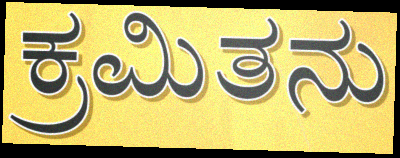
ಕ್ರಮಿತನು